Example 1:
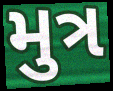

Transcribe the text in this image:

મુત્ર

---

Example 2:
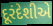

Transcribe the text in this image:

દૂરંદેશીએ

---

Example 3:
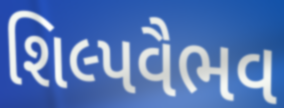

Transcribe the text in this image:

શિલ્પવૈભવ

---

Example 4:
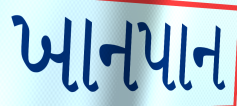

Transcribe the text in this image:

ખાનપાન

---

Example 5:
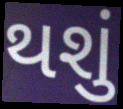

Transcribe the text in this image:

થશું